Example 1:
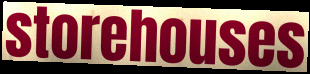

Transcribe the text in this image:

storehouses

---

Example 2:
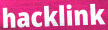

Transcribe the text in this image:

hacklink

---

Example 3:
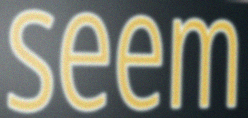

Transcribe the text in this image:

seem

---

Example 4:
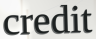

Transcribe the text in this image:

credit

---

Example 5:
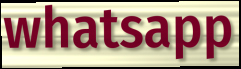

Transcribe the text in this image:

whatsapp